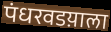
पंधरवडय़ाला